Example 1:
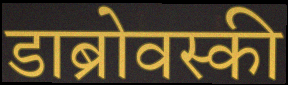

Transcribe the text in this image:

डाब्रोवस्की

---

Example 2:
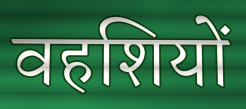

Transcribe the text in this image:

वहशियों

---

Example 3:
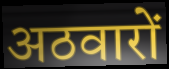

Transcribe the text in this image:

अठवारों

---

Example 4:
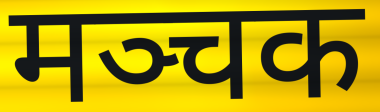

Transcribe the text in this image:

मञ्चक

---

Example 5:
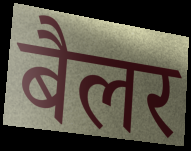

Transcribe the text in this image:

बैलर